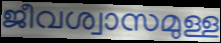
ജീവശ്വാസമുള്ള